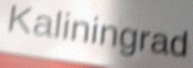
Kaliningrad